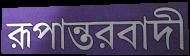
রূপান্তরবাদী